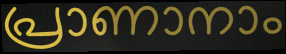
പ്രാണാനാം